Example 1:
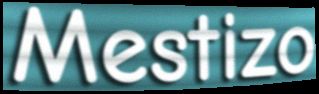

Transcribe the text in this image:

Mestizo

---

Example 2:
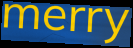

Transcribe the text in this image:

merry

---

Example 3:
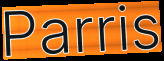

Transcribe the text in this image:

Parris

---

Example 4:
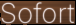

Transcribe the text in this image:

Sofort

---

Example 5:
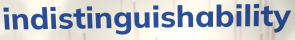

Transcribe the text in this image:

indistinguishability